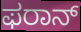
ಫರಾನ್